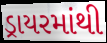
ડ્રાયરમાંથી